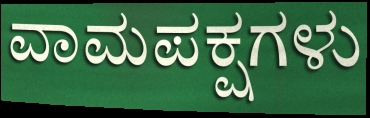
ವಾಮಪಕ್ಷಗಳು